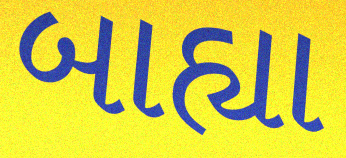
બાહ્યા